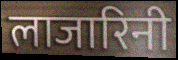
लाजारिनी